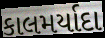
કાલમર્યાદા